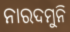
ନାରଦମୁନି